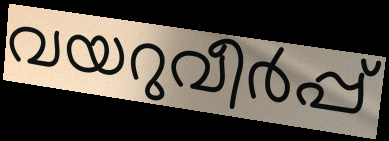
വയറുവീർപ്പ്